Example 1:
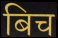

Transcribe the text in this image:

बिच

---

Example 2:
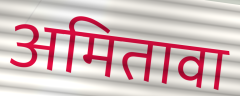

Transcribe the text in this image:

अमितावा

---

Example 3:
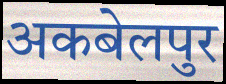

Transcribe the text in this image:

अकबेलपुर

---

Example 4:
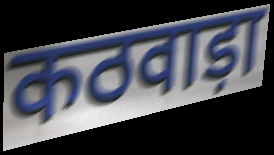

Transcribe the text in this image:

कठवाड़ा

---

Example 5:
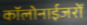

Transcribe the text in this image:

कॉलोनाईजरों